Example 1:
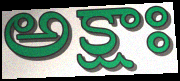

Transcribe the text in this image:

అక్షాః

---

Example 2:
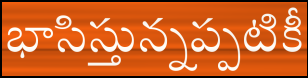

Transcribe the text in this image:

భాసిస్తున్నప్పటికీ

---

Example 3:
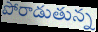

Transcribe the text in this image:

పోరాడుతున్న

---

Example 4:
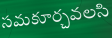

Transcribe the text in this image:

సమకూర్చవలసి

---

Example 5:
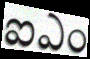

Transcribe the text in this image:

ఐఎం